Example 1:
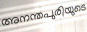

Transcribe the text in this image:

അനന്തപുരിയുടെ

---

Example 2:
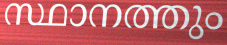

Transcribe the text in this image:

സ്ഥാനത്തും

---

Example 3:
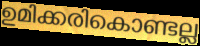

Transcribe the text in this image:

ഉമിക്കരികൊണ്ടല്ല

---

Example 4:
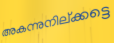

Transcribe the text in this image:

അകന്നുനില്ക്കട്ടെ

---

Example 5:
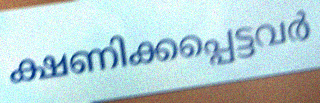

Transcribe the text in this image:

ക്ഷണിക്കപ്പെട്ടവർ